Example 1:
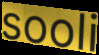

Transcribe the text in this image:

sooli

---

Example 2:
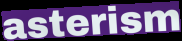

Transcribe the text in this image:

asterism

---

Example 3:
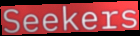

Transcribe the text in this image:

Seekers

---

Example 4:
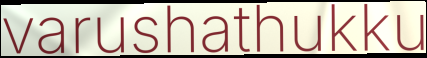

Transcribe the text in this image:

varushathukku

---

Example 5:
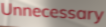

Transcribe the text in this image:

Unnecessary